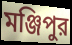
মঞ্জিপুর